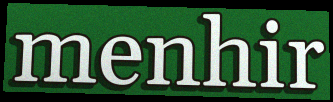
menhir